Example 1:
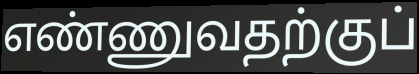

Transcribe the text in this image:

எண்ணுவதற்குப்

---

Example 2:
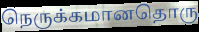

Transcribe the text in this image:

நெருக்கமானதொரு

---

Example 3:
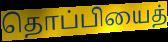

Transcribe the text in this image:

தொப்பியைத்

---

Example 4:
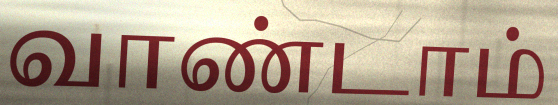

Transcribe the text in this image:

வாண்டாம்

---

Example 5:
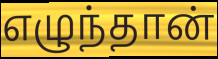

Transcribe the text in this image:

எழுந்தான்